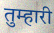
तुम्‍हारी